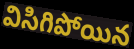
విసిగిపోయిన